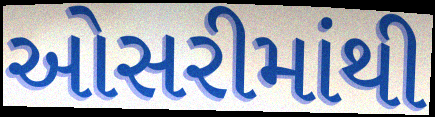
ઓસરીમાંથી